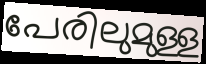
പേരിലുമുള്ള